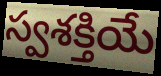
స్వశక్తియే